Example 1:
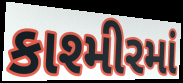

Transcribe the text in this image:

કાશ્મીરમાં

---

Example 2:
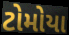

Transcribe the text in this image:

ટોમોયા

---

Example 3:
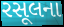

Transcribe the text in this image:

રસૂલના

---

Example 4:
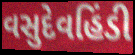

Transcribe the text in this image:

વસુદેવહિંડી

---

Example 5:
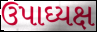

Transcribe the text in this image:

ઉપાઘ્યક્ષ